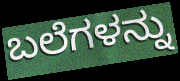
ಬಲೆಗಳನ್ನು